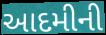
આદમીની